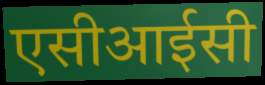
एसीआईसी